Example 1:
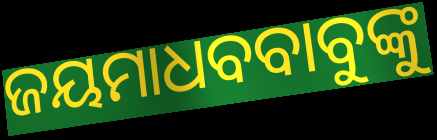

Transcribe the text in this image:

ଜୟମାଧବବାବୁଙ୍କୁ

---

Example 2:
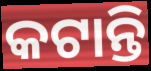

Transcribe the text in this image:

କଟାନ୍ତି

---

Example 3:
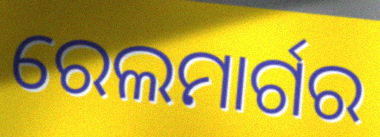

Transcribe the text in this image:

ରେଲମାର୍ଗର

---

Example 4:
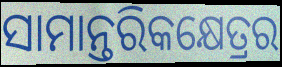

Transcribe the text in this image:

ସାମାନ୍ତରିକକ୍ଷେତ୍ରର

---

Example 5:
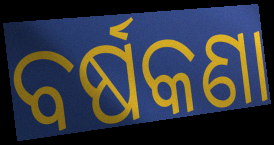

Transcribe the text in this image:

ବର୍ଷକଣା